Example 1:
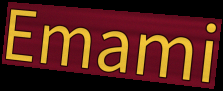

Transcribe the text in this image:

Emami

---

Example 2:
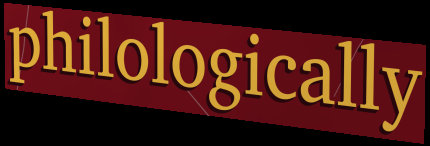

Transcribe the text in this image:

philologically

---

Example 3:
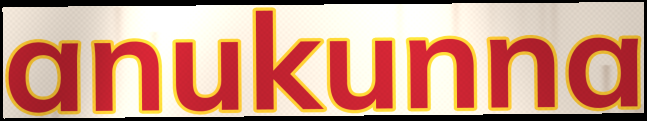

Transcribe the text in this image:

anukunna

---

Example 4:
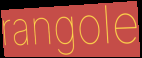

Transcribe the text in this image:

rangole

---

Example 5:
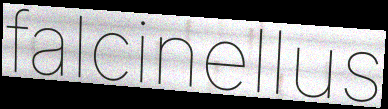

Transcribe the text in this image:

falcinellus